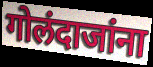
गोलंदाजांना